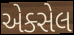
એક્સેલ